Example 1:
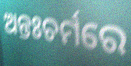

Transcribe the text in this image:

ଅନ୍ତଃଚର୍ମରେ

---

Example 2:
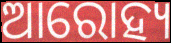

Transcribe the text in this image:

ଆରୋହ୍ୟ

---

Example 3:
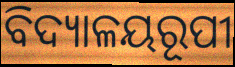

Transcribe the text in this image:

ବିଦ୍ୟାଳୟରୂପୀ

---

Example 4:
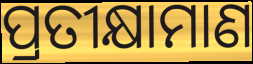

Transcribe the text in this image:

ପ୍ରତୀକ୍ଷାମାଣ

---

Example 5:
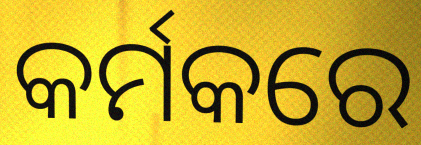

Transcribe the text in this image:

କର୍ମକରେ